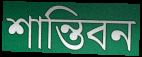
শান্তিবন